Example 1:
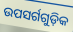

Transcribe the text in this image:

ଉପସର୍ଗଗୁଡ଼ିକ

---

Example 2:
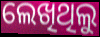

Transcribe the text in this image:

ଲେଖିଥିଲୁ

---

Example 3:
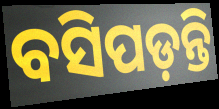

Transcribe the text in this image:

ବସିପଡ଼ନ୍ତି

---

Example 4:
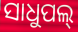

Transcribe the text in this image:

ସାଧୁପଲ୍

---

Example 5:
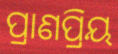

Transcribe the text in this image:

ପ୍ରାଣପ୍ରିୟ